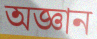
অজ্ঞান